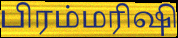
பிரம்மரிஷி